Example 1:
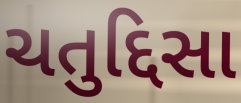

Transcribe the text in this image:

ચતુદ્દિસા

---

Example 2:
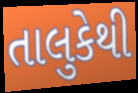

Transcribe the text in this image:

તાલુકેથી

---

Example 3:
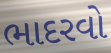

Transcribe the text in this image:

ભાદરવો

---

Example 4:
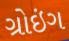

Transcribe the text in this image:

ગ્રોઇંગ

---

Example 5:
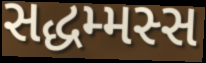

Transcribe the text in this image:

સદ્ધમ્મસ્સ